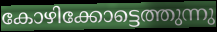
കോഴിക്കോട്ടെത്തുന്നു